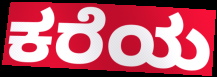
ಕರೆಯ